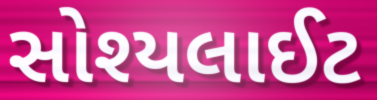
સોશ્યલાઈટ